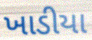
ખાડીયા